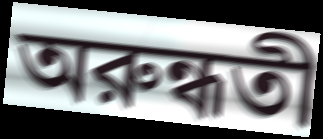
অরুন্ধতী